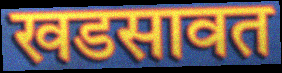
खडसावत